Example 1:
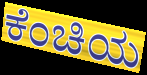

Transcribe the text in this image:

ಕೆಂಚಿಯ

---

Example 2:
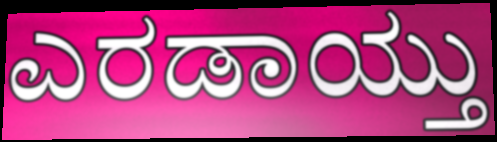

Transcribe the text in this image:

ಎರಡಾಯ್ತು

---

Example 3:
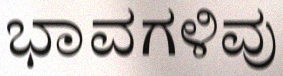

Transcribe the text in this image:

ಭಾವಗಳಿವು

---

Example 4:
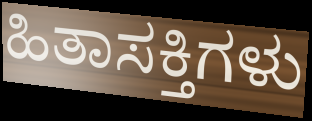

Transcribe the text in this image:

ಹಿತಾಸಕ್ತಿಗಳು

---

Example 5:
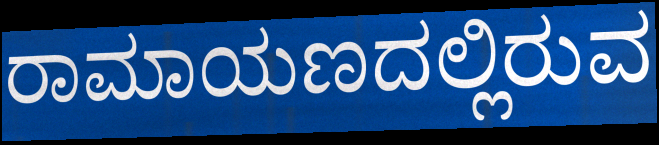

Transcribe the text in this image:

ರಾಮಾಯಣದಲ್ಲಿರುವ